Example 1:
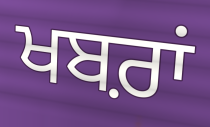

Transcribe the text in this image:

ਖਬ਼ਰਾਂ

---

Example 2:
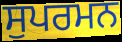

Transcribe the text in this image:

ਸੁਪਰਮਨ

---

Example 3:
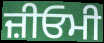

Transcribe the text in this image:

ਜ਼ੀਓਮੀ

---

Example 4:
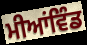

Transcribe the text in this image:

ਮੀਆਂਵਿੰਡ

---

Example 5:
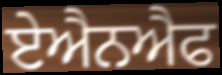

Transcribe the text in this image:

ਏਐਨਐਫ